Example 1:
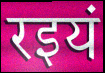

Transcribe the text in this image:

रइयं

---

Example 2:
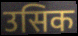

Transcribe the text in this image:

उसिक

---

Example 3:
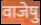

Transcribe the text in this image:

वाजेषु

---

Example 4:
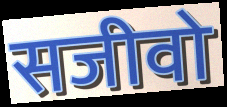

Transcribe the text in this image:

सजीवो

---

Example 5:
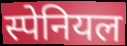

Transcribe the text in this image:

स्पेनियल